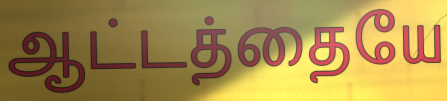
ஆட்டத்தையே